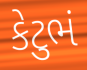
કેટુભં